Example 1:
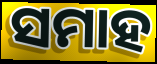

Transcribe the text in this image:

ସମାହ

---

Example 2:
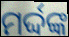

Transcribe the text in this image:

ମର୍ଦ୍ଦଙ୍କ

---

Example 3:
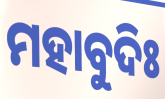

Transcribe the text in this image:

ମହାବୁଦିଃ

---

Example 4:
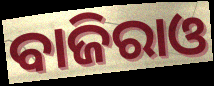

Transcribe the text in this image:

ବାଜିରାଓ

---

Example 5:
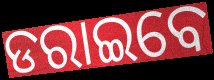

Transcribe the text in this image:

ଡରାଇବେ